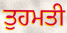
ਤੁਹਮਤੀ